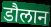
डौलान